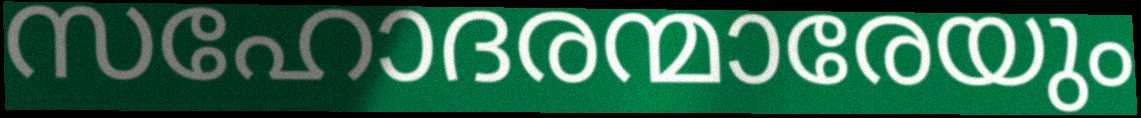
സഹോദരന്മാരേയും